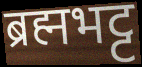
ब्रह्मभट्ट